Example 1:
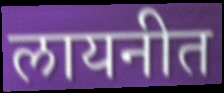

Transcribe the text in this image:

लायनीत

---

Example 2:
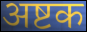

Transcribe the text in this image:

अष्टक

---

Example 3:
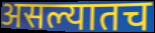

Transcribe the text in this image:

असल्यातच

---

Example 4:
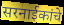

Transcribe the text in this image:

सरनाईकांचे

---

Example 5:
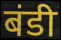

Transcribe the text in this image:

बंडी